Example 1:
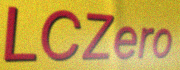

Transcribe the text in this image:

LCZero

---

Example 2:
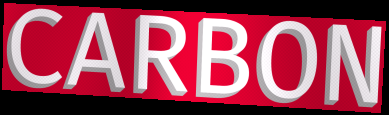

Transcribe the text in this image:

CARBON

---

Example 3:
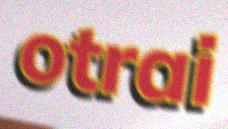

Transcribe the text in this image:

otrai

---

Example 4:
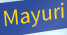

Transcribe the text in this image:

Mayuri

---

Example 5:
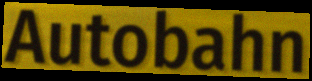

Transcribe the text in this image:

Autobahn